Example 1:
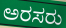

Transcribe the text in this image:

ಅರಸರು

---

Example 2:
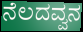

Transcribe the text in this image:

ನೆಲದವ್ವನ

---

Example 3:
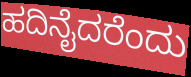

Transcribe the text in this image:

ಹದಿನೈದರೆಂದು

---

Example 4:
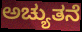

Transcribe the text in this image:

ಅಚ್ಯುತನೆ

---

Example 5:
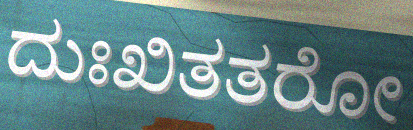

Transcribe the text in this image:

ದುಃಖಿತತರೋ